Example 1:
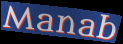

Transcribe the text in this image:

Manab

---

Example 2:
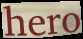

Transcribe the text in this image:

hero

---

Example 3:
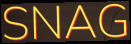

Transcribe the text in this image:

SNAG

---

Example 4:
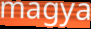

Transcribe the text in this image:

magya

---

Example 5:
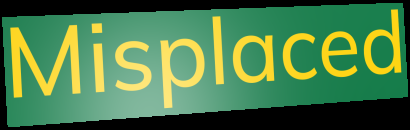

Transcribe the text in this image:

Misplaced